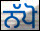
ਨੱਪੋ